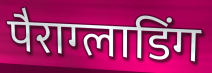
पैराग्लाडिंग